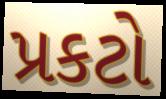
પ્રકટો